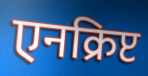
एनक्रिप्ट